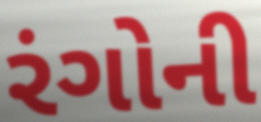
રંગોની